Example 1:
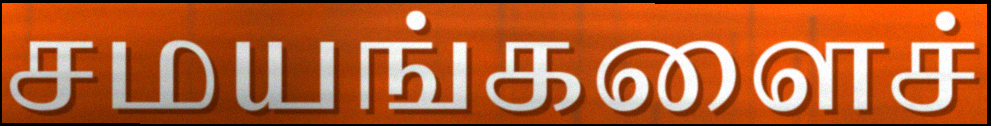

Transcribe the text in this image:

சமயங்களைச்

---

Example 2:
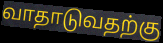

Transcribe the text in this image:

வாதாடுவதற்கு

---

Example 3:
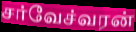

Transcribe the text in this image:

சர்வேச்வரன்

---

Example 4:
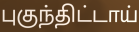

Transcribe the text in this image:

புகுந்திட்டாய்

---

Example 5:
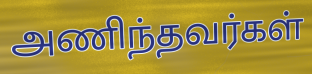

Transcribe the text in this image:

அணிந்தவர்கள்